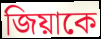
জিয়াকে